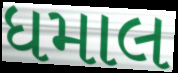
ધમાલ